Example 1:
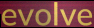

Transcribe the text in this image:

evolve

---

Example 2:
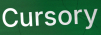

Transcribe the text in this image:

Cursory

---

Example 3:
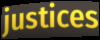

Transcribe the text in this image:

justices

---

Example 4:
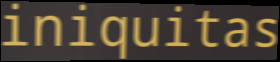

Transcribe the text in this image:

iniquitas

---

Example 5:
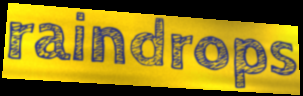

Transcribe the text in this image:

raindrops